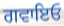
ਗਵਾਇਓ